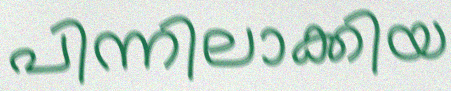
പിന്നിലാക്കിയ